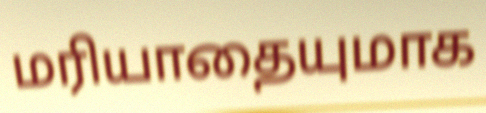
மரியாதையுமாக